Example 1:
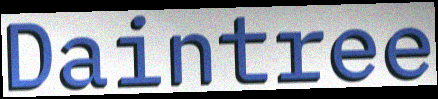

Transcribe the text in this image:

Daintree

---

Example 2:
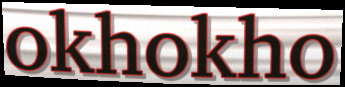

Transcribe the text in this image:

okhokho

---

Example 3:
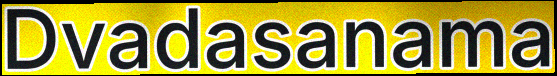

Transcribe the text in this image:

Dvadasanama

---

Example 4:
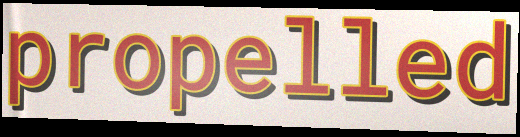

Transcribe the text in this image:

propelled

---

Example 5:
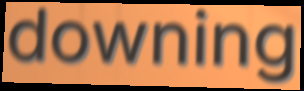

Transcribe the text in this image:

downing